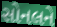
સોનલને